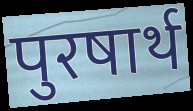
पुरषार्थ